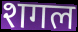
शगल